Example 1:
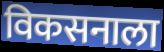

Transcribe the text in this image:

विकसनाला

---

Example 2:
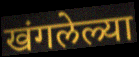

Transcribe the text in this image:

खंगलेल्या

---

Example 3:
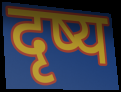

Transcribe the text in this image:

दृष्य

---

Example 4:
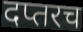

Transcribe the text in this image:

दप्तरच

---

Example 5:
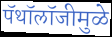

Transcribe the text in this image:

पॅथॉलॉजीमुळे